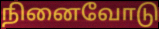
நினைவோடு